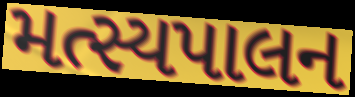
મત્સ્યપાલન